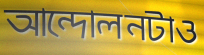
আন্দোলনটাও